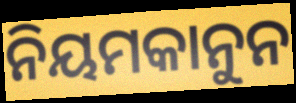
ନିୟମକାନୁନ